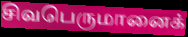
சிவபெருமானைக்